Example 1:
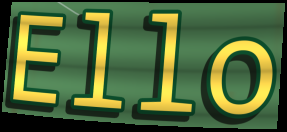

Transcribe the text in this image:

Ello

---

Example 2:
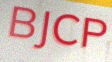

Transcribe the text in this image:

BJCP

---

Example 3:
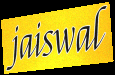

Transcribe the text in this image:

jaiswal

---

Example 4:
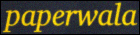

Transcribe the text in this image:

paperwala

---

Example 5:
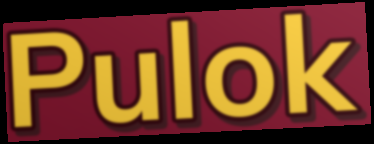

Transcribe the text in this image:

Pulok